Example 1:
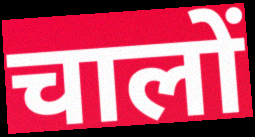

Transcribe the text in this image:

चालों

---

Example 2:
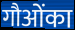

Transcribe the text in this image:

गौओंका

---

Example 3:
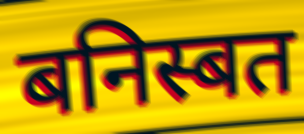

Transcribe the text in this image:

बनिस्बत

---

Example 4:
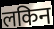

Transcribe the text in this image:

लकिन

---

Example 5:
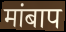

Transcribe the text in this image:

मांबाप